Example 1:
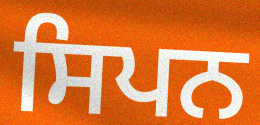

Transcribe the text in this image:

ਸਿਪਨ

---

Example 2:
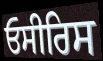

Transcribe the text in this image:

ਓਸੀਰਿਸ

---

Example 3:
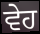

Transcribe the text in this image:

ਵੇਹ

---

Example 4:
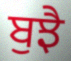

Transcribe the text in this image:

ਬੁਝੈ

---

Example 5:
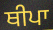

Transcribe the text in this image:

ਥੀਪਾ